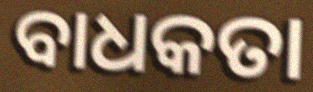
ବାଧକତା